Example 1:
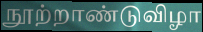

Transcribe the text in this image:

நூற்றாண்டுவிழா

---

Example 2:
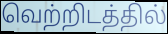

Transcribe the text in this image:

வெற்றிடத்தில்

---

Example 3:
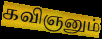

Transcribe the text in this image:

கவிஞனும்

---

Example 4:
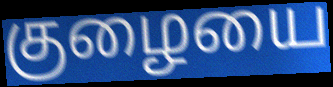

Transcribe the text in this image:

குழையை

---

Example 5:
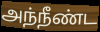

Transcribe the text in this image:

அந்நீண்ட